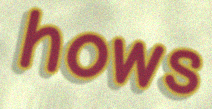
hows